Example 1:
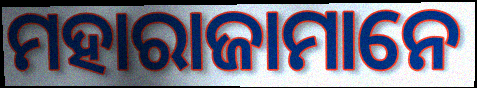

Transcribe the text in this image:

ମହାରାଜାମାନେ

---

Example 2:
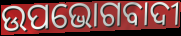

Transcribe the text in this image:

ଉପଭୋଗବାଦୀ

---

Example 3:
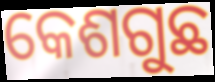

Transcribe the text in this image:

କେଶଗୁଛ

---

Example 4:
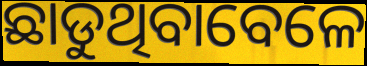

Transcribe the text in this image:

ଛାଡୁଥିବାବେଳେ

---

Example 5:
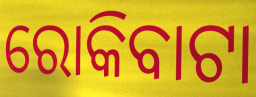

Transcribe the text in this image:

ରୋକିବାଟା